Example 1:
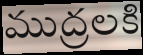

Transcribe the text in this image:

ముద్రలకి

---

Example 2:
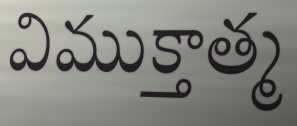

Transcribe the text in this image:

విముక్తాత్మ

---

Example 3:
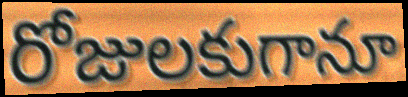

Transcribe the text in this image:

రోజులకుగానూ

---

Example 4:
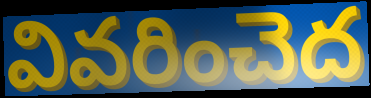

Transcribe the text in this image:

వివరించెద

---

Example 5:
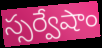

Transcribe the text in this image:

స్సర్వేషాం